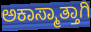
ಅಕಾಸ್ಮಾತ್ತಾಗಿ